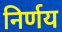
निर्णय